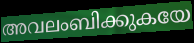
അവലംബിക്കുകയേ